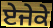
ਏਜੇਕੇ